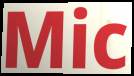
Mic